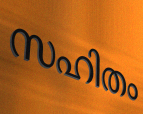
സഹിതം